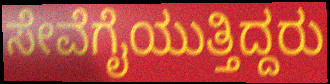
ಸೇವೆಗೈಯುತ್ತಿದ್ದರು